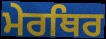
ਮੇਰਥਿਰ